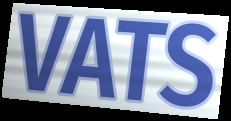
VATS